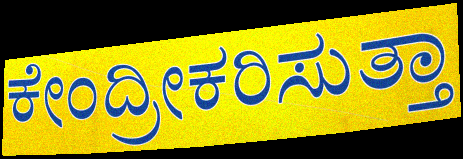
ಕೇಂದ್ರೀಕರಿಸುತ್ತಾ